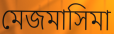
মেজমাসিমা